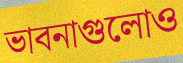
ভাবনাগুলোও